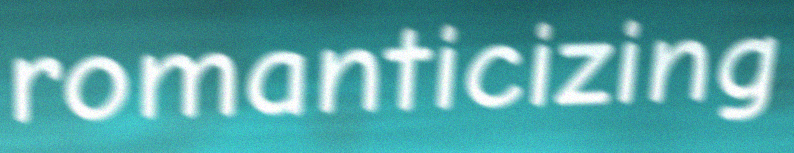
romanticizing